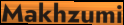
Makhzumi